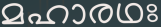
മഹാരഥഃ